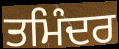
ਤਮਿੰਦਰ